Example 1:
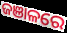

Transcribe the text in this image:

ଜଞାଳରେ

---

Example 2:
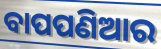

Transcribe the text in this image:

ବାପପଣିଆର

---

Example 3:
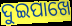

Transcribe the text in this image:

ଦୁଇପାଖେ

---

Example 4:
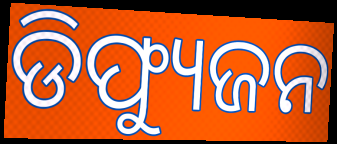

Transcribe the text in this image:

ଡିଫ୍ୟୁଜନ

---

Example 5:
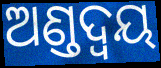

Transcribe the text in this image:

ଅଣ୍ଡଦ୍ୱୟ